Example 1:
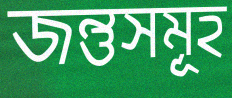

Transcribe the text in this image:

জন্তুসমূহ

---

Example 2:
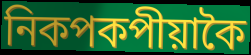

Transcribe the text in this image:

নিকপকপীয়াকৈ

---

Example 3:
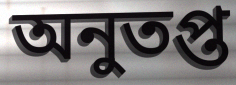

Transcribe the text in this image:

অনুতপ্ত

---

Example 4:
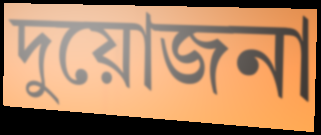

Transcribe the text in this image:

দুয়োজনা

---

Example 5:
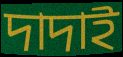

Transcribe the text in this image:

দাদাই